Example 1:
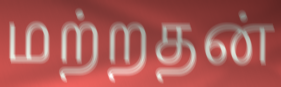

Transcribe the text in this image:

மற்றதன்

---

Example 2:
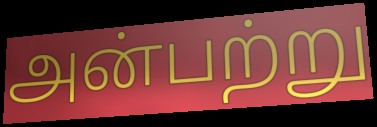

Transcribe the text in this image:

அன்பற்று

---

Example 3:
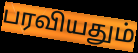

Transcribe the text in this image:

பரவியதும்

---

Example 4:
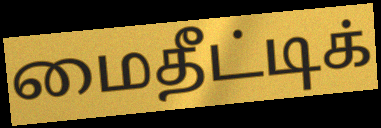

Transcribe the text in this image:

மைதீட்டிக்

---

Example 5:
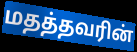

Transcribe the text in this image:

மதத்தவரின்